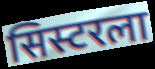
सिस्टरला